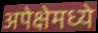
अपेक्षेमध्ये